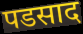
पडसाद